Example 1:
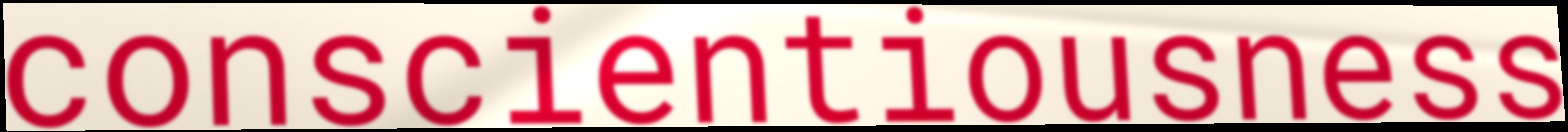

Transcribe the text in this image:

conscientiousness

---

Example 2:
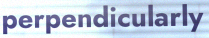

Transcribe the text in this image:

perpendicularly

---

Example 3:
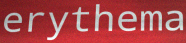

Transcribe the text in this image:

erythema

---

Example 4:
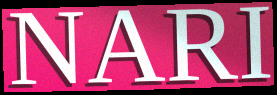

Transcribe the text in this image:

NARI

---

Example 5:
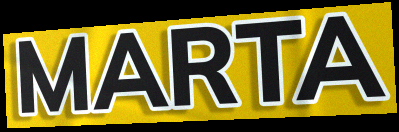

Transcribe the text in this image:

MARTA